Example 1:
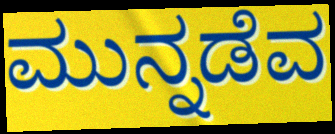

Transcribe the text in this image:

ಮುನ್ನಡೆವ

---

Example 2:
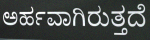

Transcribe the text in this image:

ಅರ್ಹವಾಗಿರುತ್ತದೆ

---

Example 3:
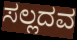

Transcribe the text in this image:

ಸಲ್ಲದವ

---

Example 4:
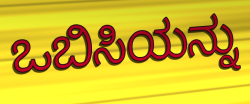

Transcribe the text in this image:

ಒಬಿಸಿಯನ್ನು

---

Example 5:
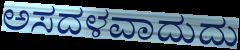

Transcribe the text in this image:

ಅಸದಳವಾದುದು